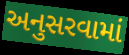
અનુસરવામાં